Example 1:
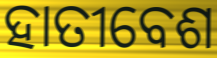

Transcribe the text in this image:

ହାତୀବେଶ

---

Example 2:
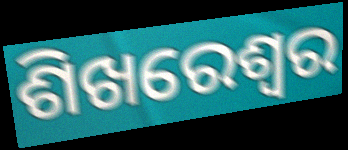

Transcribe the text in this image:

ଶିଖରେଶ୍ୱର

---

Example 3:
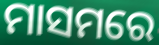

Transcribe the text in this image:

ମାସମରେ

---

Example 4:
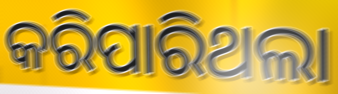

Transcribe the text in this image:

କରିପାରିଥଲା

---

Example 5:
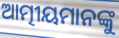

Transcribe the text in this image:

ଆତ୍ମୀୟମାନଙ୍କୁ